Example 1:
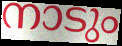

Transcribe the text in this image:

നാടും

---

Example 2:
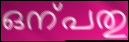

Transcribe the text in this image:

ഒന്പതു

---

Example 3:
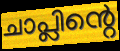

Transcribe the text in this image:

ചാപ്ലിന്റെ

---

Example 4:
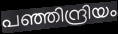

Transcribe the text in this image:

പഞ്ഞിന്ദ്രിയം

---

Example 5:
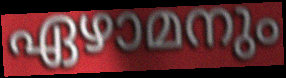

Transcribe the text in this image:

ഏഴാമനും